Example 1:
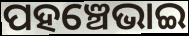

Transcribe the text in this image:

ପହଞ୍ଚେଭାଇ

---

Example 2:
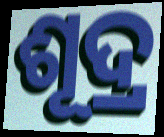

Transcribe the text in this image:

ଶୂଦ୍ର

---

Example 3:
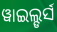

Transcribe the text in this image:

ୱାଇଲ୍ଡର୍ସ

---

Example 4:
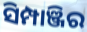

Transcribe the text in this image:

ସିମ୍ପାଞ୍ଜିର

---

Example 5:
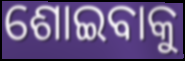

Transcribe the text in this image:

ଶୋଇବାକୁ